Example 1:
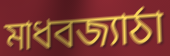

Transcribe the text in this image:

মাধবজ্যাঠা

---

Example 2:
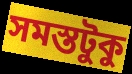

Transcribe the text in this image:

সমস্তটুকু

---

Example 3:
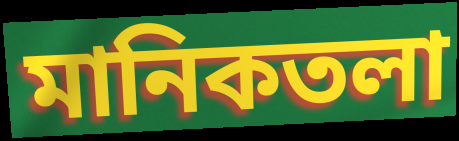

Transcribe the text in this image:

মানিকতলা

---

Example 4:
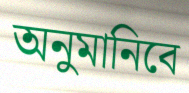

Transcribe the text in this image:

অনুমানিবে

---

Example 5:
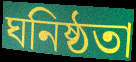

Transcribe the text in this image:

ঘনিষ্ঠতা